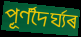
পূৰ্ণদৈৰ্ঘ্যৰ